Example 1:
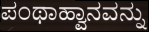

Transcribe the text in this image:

ಪಂಥಾಹ್ವಾನವನ್ನು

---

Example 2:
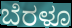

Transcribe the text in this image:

ಬೆರಳೂ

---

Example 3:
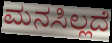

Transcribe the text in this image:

ಮನಸಿಲ್ಲದೆ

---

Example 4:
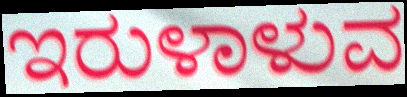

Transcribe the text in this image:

ಇರುಳಾಳುವ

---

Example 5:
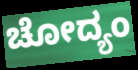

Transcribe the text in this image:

ಚೋದ್ಯಂ